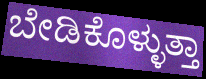
ಬೇಡಿಕೊಳ್ಳುತ್ತಾ